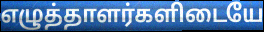
எழுத்தாளர்களிடையே